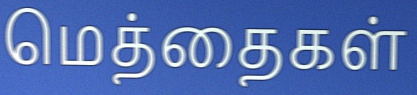
மெத்தைகள்